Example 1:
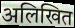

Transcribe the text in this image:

अलिखित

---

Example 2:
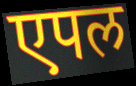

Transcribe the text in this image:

एपल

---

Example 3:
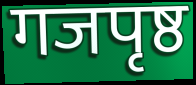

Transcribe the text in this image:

गजपृष्ठ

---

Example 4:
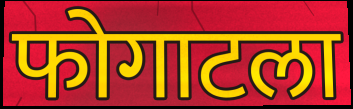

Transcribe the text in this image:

फोगाटला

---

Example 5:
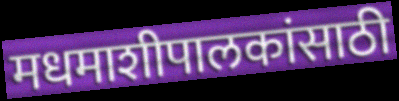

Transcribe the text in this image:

मधमाशीपालकांसाठी